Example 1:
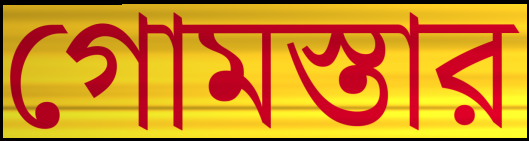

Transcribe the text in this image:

গোমস্তার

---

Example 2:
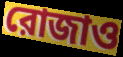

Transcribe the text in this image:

রোজাও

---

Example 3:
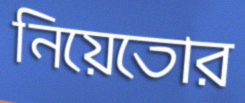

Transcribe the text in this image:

নিয়েতোর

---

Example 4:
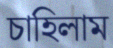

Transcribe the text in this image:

চাহিলাম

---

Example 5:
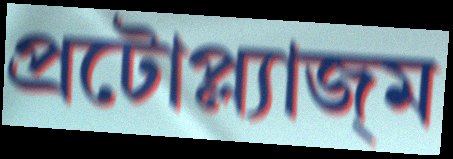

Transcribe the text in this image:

প্রটোপ্ল্যাজ্ম